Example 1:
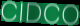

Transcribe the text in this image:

CIDCO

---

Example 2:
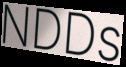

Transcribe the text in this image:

NDDs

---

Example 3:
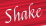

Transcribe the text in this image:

Shake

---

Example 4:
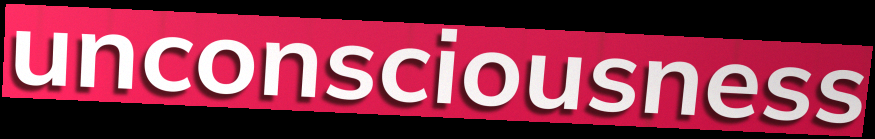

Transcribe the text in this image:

unconsciousness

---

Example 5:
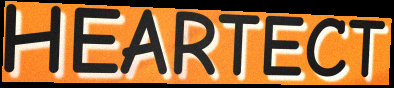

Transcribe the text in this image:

HEARTECT